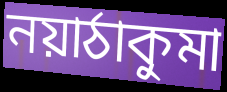
নয়াঠাকুমা